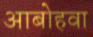
आबोहवा